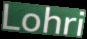
Lohri